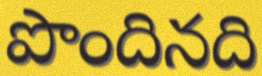
పొందినది